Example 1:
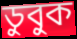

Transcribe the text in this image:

ডুবুক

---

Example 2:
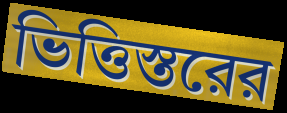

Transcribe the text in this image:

ভিত্তিস্তরের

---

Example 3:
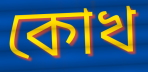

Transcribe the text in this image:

কোখ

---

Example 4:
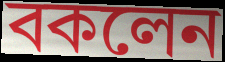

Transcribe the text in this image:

বকলেন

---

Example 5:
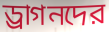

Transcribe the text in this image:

ড্রাগনদের